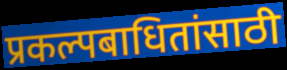
प्रकल्पबाधितांसाठी